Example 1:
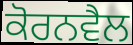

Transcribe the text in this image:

ਕੋਰਨਵੈਲ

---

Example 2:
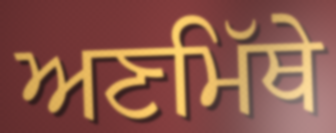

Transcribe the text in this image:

ਅਣਮਿੱਥੇ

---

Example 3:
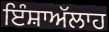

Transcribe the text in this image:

ਇੰਸ਼ਾਅੱਲਾਹ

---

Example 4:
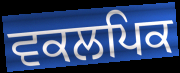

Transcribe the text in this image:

ਵਕਲਪਿਕ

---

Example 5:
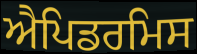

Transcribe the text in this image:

ਐਪਿਡਰਮਿਸ